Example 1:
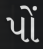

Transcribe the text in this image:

પોં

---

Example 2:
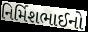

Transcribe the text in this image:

નિર્મિશભાઈનો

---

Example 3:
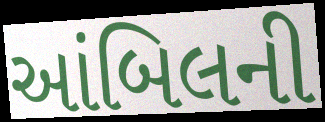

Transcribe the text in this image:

આંબિલની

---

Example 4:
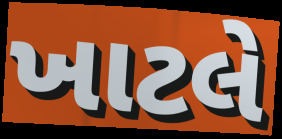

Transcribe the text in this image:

ખાટલે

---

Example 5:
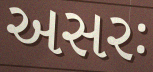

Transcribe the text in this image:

અસરઃ